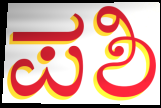
ಪಶಿ